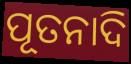
ପୂତନାଦି